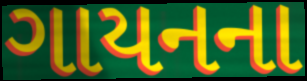
ગાયનના